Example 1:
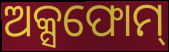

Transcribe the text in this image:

ଅକ୍ସଫୋମ୍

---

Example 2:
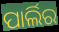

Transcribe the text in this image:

ପାର୍ଲିର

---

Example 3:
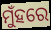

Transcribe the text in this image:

ମୁଁହରେ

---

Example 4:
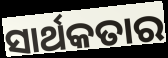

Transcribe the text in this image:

ସାର୍ଥକତାର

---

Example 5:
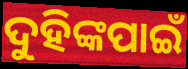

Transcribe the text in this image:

ଦୁହିଙ୍କପାଇଁ